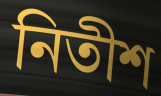
নিতীশ